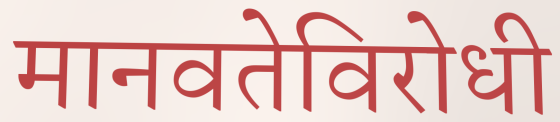
मानवतेविरोधी